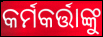
କର୍ମକର୍ତ୍ତାଙ୍କୁ